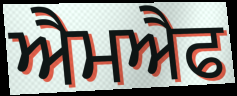
ਐਮਐਫ